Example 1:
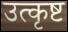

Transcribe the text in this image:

उत्कृष्ट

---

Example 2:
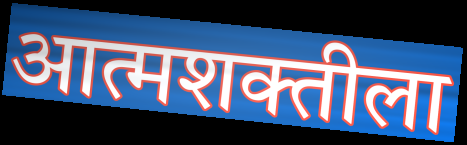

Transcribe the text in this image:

आत्मशक्तीला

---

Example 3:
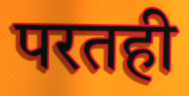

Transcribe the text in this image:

परतही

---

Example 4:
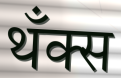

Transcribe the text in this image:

थँक्स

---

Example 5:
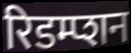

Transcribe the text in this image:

रिडम्प्शन